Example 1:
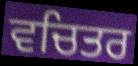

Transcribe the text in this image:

ਵਚਿਤਰ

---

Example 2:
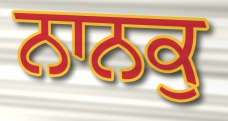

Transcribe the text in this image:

ਨਾਨਕੁ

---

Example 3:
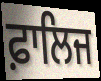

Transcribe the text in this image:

ਫ਼ਾਲਿਜ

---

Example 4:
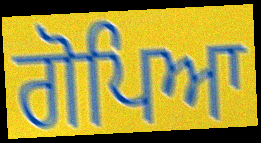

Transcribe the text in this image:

ਗੋਪਿਆ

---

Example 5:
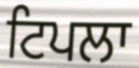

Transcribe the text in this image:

ਟਿਪਲਾ